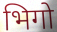
भिगो